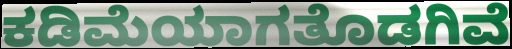
ಕಡಿಮೆಯಾಗತೊಡಗಿವೆ